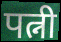
पत्नी